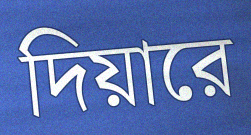
দিয়ারে